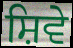
ਸ਼ਿਵੇ